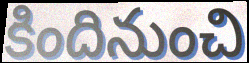
కిందినుంచి